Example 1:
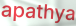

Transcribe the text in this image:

apathya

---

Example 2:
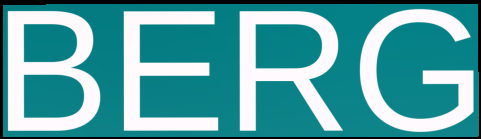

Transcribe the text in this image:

BERG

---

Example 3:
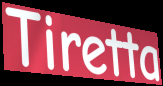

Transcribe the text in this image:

Tiretta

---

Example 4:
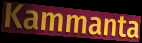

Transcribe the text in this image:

Kammanta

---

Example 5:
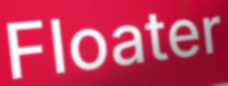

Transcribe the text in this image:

Floater